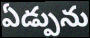
ఏడ్పును